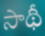
సాథీ